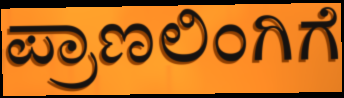
ಪ್ರಾಣಲಿಂಗಿಗೆ